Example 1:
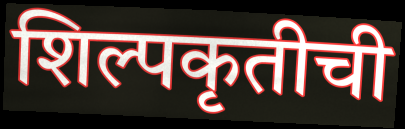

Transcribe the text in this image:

शिल्पकृतीची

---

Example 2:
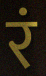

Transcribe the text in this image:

रं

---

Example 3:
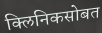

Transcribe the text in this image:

क्लिनिकसोबत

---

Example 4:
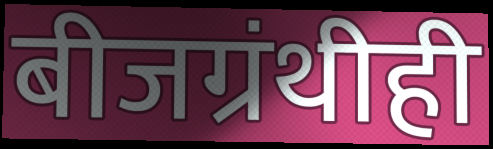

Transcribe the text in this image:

बीजग्रंथीही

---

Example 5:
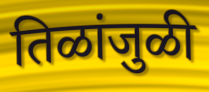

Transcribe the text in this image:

तिळांजुळी